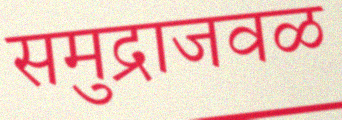
समुद्राजवळ